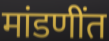
मांडणींत